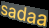
sadaa